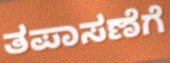
ತಪಾಸಣೆಗೆ